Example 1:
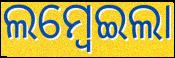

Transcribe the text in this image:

ଲମ୍ବେଇଲା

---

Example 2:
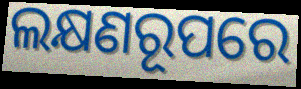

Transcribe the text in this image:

ଲକ୍ଷଣରୂପରେ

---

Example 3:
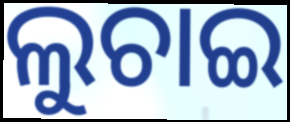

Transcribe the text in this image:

ଲୁଚାଇ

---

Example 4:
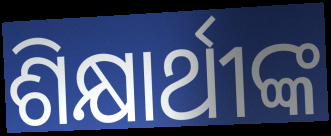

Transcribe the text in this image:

ଶିକ୍ଷାର୍ଥୀଙ୍କ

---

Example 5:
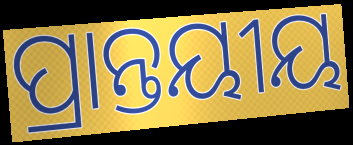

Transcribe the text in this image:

ପ୍ରାନ୍ତୟୀୟ